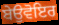
ਬੇਉਵੋਇਰ